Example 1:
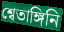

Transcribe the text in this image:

শ্বেতাঙ্গিনি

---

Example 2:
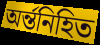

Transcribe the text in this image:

অর্ন্তনিহিত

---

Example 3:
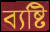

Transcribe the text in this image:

ব্যষ্টি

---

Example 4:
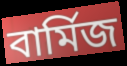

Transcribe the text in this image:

বার্মিজ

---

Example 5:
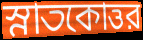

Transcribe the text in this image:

স্নাতকোত্তর